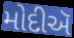
મોદીઍ